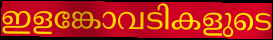
ഇളങ്കോവടികളുടെ